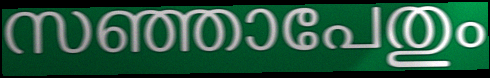
സഞ്ഞാപേതും